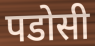
पडोसी